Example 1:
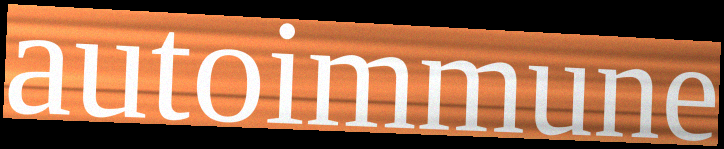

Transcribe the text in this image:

autoimmune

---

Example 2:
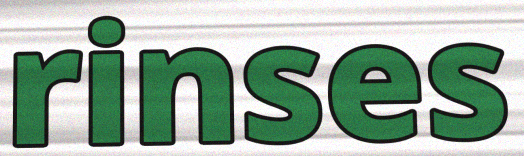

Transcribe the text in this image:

rinses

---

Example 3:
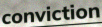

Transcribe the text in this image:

conviction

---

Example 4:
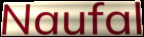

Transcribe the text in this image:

Naufal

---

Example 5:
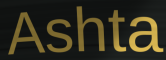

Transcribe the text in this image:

Ashta